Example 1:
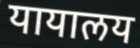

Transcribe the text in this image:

यायालय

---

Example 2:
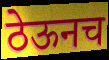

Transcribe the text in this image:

ठेऊनच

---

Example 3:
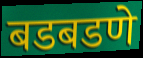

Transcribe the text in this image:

बडबडणे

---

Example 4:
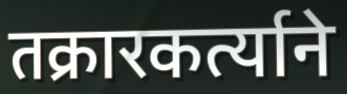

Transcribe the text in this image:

तक्रारकर्त्याने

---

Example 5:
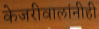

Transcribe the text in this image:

केजरीवालांनीही